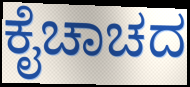
ಕೈಚಾಚದ